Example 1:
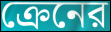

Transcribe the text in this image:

ক্রেনের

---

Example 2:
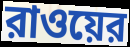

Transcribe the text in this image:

রাওয়ের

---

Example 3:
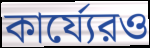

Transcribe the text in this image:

কার্য্যেরও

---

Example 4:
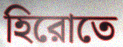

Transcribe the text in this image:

হিরোতে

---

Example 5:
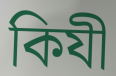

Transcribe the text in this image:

কিযী